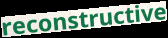
reconstructive